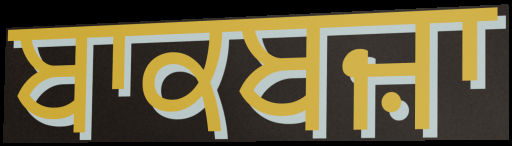
ਬਾਕਬਜ਼ਾ